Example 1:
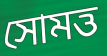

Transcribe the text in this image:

সোমত্ত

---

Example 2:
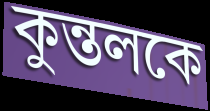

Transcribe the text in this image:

কুন্তলকে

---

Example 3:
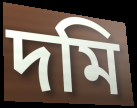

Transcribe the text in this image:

দমি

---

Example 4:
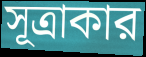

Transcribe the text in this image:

সূত্রাকার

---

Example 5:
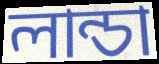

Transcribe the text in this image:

লান্ডা